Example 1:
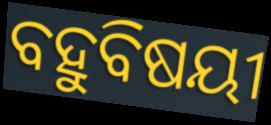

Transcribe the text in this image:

ବହୁବିଷୟୀ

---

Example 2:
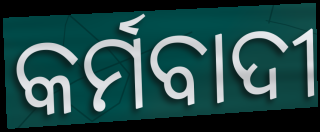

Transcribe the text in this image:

କର୍ମବାଦୀ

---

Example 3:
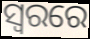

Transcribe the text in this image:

ସ୍ବରରେ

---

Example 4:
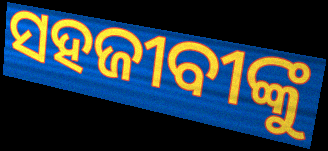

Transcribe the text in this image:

ସହଜୀବୀଙ୍କୁ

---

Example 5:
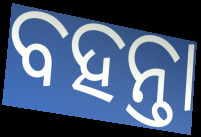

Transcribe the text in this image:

ବହନ୍ତା